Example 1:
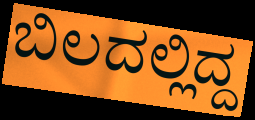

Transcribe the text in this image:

ಬಿಲದಲ್ಲಿದ್ದ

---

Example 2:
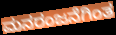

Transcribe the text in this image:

ಮನರಂಜನೆಗಿಂತ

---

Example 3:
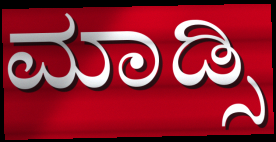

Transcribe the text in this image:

ಮಾಡ್ಸಿ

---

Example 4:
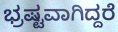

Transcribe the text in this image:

ಭ್ರಷ್ಟವಾಗಿದ್ದರೆ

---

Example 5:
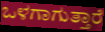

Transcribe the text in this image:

ಒಳಗಾಗುತ್ತಾರೆ